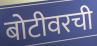
बोटीवरची